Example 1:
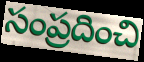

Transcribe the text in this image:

సంప్రదించి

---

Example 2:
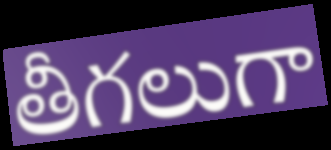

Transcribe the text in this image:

తీగలుగా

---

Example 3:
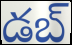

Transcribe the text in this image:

డబ్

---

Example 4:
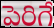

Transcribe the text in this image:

పెరిగే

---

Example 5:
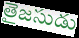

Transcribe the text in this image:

తైజసుడు